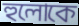
হুলোকে